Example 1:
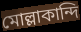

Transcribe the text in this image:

মোল্লাকান্দি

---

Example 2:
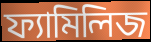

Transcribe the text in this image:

ফ্যামিলিজ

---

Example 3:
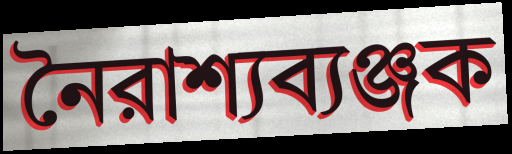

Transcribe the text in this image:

নৈরাশ্যব্যঞ্জক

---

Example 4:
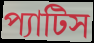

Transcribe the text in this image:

প্যাটিস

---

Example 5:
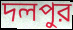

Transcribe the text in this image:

দলপুর